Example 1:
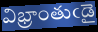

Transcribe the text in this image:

విభ్రాంతుఁడై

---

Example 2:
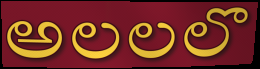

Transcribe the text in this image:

అలలలొ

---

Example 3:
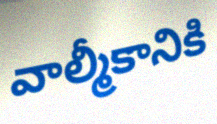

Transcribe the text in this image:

వాల్మీకానికి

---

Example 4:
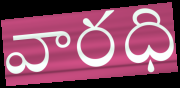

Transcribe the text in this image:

వారధి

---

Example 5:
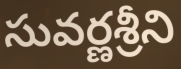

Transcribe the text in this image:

సువర్ణశ్రీని